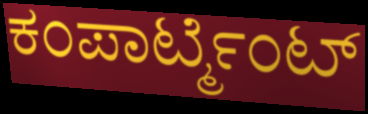
ಕಂಪಾರ್ಟ್ಮೆಂಟ್